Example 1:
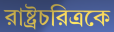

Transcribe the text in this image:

রাষ্ট্রচরিত্রকে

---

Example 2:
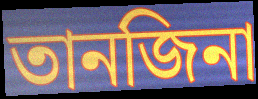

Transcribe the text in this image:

তানজিনা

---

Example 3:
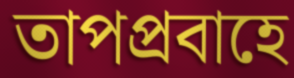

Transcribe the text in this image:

তাপপ্রবাহে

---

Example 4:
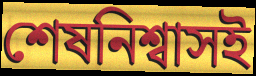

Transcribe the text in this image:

শেষনিশ্বাসই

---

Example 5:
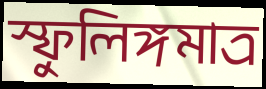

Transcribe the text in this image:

স্ফুলিঙ্গমাত্র